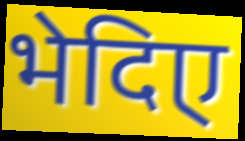
भेदिए